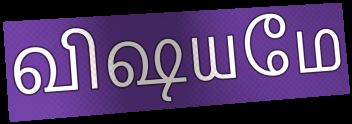
விஷயமே